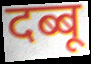
दब्बू